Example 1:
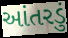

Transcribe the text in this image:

આંતરડું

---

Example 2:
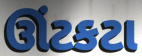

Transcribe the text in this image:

ઊંટકટા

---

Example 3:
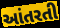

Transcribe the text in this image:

આંતરતી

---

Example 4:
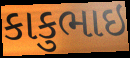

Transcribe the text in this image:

કાકુભાઇ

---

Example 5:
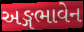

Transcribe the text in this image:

અઙ્ગભાવેન